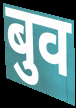
बुव